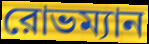
রোভম্যান